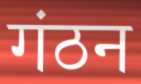
गंठन